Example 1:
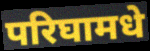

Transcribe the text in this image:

परिघामधे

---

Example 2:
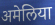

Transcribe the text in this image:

अमेलिया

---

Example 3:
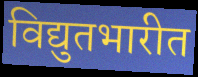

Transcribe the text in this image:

विद्युतभारीत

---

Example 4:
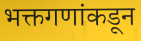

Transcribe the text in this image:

भक्तगणांकडून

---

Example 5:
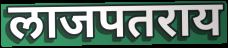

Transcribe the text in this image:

लाजपतराय